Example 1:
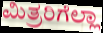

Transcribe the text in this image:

ಮಿತ್ರರಿಗೆಲ್ಲಾ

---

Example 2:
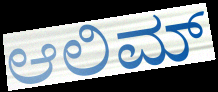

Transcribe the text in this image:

ಆಲಿಮ್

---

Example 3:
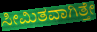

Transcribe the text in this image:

ಸೀಮಿತವಾಗಿತ್ತೇ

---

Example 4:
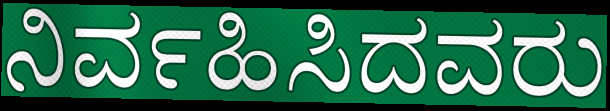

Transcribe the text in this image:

ನಿರ್ವಹಿಸಿದವರು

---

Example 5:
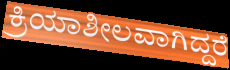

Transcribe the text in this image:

ಕ್ರಿಯಾಶೀಲವಾಗಿದ್ದರೆ